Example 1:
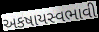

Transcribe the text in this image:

અકષાયસ્વભાવી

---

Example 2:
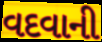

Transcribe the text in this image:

વદવાની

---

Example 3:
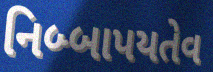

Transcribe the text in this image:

નિબ્બાપયતેવ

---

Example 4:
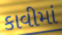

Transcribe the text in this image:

કાવીમાં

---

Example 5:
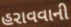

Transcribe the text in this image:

હરાવવાની